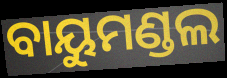
ବାୟୁମଣ୍ଡଲ